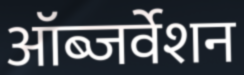
ऑब्ज़र्वेशन